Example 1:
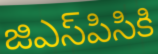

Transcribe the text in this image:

జిఎస్‌పిసికి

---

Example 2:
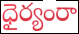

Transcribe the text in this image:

ధైర్యంరా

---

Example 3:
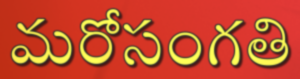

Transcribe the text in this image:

మరోసంగతి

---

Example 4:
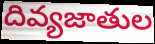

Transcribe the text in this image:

దివ్యజాతుల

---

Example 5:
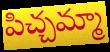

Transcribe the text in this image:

పిచ్చమ్మా